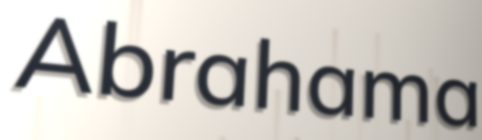
Abrahama